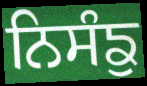
ਨਿਸੰਙੁ